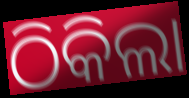
ଠିକିଲା